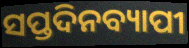
ସପ୍ତଦିନବ୍ୟାପୀ